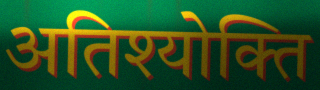
अतिश्योक्ति